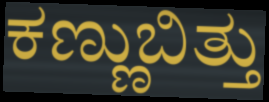
ಕಣ್ಣುಬಿತ್ತು